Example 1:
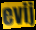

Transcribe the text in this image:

evij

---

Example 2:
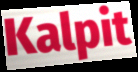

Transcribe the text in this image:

Kalpit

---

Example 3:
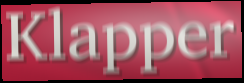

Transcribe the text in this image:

Klapper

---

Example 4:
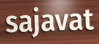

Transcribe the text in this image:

sajavat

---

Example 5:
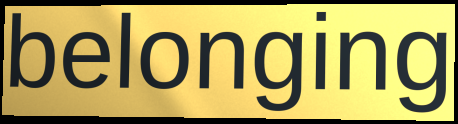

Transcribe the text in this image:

belonging